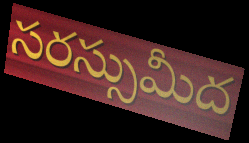
సరస్సుమీద